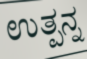
ಉತ್ಪನ್ನ